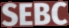
SEBC